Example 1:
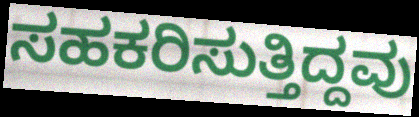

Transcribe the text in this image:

ಸಹಕರಿಸುತ್ತಿದ್ದವು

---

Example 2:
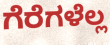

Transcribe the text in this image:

ಗೆರೆಗಳೆಲ್ಲ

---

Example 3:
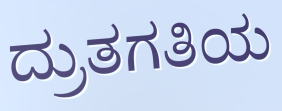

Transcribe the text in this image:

ದ್ರುತಗತಿಯ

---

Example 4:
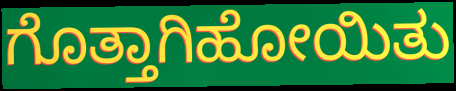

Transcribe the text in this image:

ಗೊತ್ತಾಗಿಹೋಯಿತು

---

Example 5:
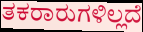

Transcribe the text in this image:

ತಕರಾರುಗಳಿಲ್ಲದೆ